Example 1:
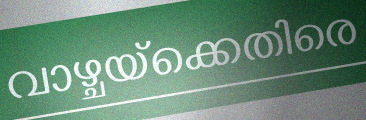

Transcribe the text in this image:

വാഴ്ചയ്‌ക്കെതിരെ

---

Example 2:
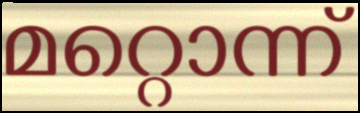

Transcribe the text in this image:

മറ്റൊന്ന്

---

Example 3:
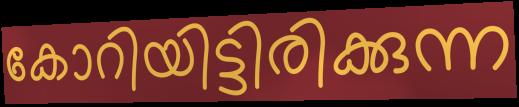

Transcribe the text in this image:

കോറിയിട്ടിരിക്കുന്ന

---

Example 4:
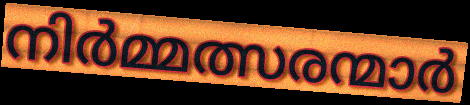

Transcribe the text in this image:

നിർമ്മത്സരന്മാർ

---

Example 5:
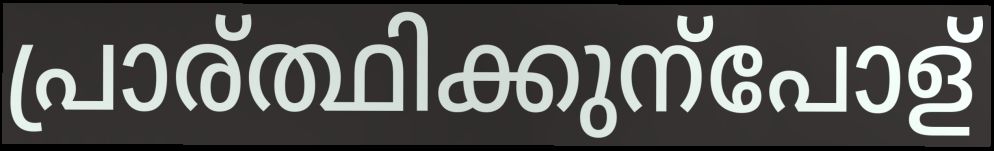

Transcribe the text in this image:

പ്രാര്ത്ഥിക്കുന്പോള്